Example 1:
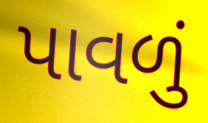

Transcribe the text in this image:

પાવળું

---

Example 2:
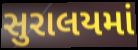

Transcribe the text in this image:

સુરાલયમાં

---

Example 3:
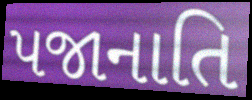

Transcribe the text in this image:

પજાનાતિ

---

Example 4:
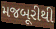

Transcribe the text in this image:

મજબૂરીથી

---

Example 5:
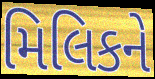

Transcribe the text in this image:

મિલિકને